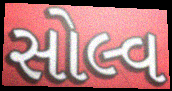
સોલ્વ